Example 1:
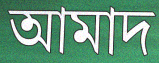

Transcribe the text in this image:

আমাদ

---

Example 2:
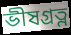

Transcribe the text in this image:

ভীষগ্ৰত্ন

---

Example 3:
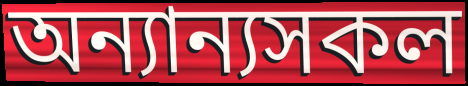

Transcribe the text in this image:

অন্যান্যসকল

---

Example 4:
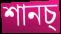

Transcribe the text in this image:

শানচ্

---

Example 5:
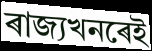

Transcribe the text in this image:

ৰাজ্যখনৰেই